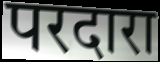
परदारा